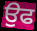
ਉਫ